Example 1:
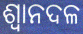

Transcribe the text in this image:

ଶ୍ୱାନଦଳ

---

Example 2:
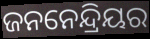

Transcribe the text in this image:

ଜନନେନ୍ଦ୍ରିୟର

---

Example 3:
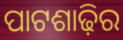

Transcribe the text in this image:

ପାଟଶାଢ଼ିର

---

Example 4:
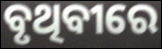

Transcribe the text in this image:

ବୃଥିବୀରେ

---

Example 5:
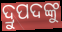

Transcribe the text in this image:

ଦ୍ରୁପଦଙ୍କୁ